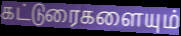
கட்டுரைகளையும்